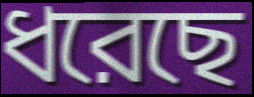
ধরেছে